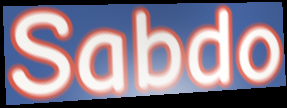
Sabdo